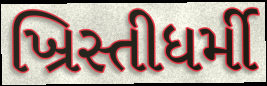
ખ્રિસ્તીધર્મી